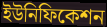
ইউনিফিকেশন